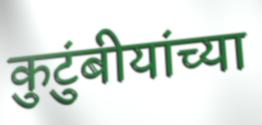
कुटुंबीयांच्या